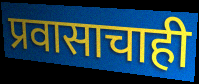
प्रवासाचाही